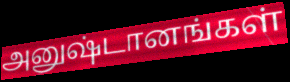
அனுஷ்டானங்கள்